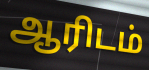
ஆரிடம்